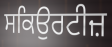
ਸਕਿਉਰਟੀਜ਼